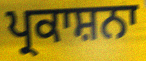
ਪ੍ਰਕਾਸ਼ਨਾ